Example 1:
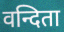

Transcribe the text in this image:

वन्दिता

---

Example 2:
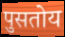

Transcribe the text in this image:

पुसतोय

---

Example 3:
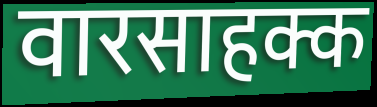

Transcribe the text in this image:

वारसाहक्क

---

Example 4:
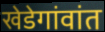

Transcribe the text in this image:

खेडेगांवांत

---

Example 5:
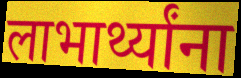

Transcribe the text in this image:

लाभार्थ्यांना